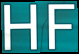
HF